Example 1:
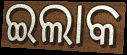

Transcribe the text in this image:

ଇଲାକ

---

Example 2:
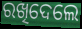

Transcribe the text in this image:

ରଖିଦେଲେ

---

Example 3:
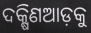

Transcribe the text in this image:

ଦକ୍ଷିଣଆଡ଼କୁ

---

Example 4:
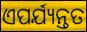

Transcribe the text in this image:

ଏପର୍ଯ୍ୟନ୍ତତ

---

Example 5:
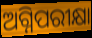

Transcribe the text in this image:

ଅଗ୍ନିପରୀକ୍ଷା